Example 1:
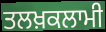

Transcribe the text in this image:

ਤਲਖ਼ਕਲਾਮੀ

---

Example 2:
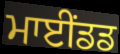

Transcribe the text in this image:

ਮਾਈਂਡਡ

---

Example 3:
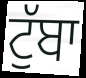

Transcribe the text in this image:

ਟੁੱਬਾ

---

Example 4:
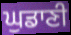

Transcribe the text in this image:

ਘੁਡਾਣੀ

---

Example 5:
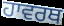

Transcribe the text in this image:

ਹਾਵਰਥ